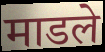
माडले